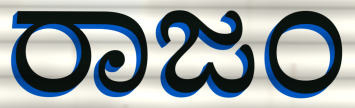
ರಾಜಂ